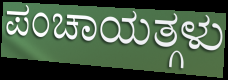
ಪಂಚಾಯತ್ಗಳು